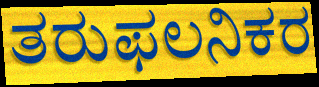
ತರುಫಲನಿಕರ